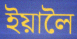
ইয়ালৈ